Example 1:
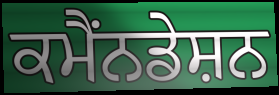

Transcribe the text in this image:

ਕਮੈਂਨਡੇਸ਼ਨ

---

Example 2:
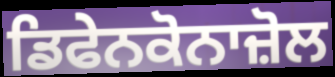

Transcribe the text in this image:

ਡਿਫੇਨਕੋਨਾਜ਼ੋਲ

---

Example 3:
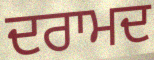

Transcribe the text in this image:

ਦਰਾਮਦ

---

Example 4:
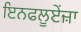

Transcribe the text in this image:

ਇਨਫਲੂਏਂਜ਼ਾ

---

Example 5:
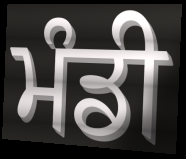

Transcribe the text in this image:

ਮੰਡੀ